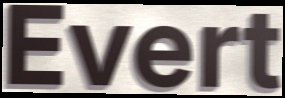
Evert